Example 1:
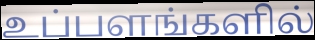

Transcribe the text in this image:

உப்பளங்களில்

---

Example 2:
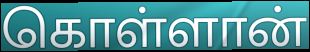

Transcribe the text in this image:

கொள்ளான்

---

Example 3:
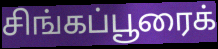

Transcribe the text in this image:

சிங்கப்பூரைக்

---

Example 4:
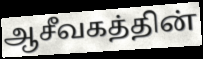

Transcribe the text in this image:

ஆசீவகத்தின்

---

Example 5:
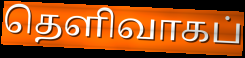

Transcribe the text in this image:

தெளிவாகப்